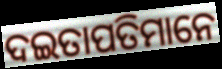
ଦଇତାପତିମାନେ